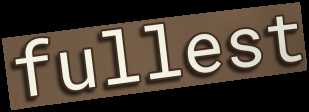
fullest